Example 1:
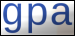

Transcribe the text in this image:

gpa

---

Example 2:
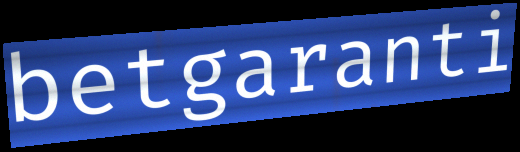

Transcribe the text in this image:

betgaranti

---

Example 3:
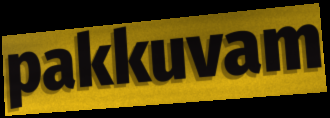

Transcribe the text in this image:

pakkuvam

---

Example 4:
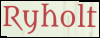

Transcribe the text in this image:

Ryholt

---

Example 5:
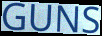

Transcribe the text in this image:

GUNS